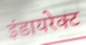
इंडायरेक्ट